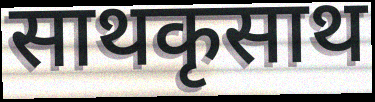
साथकृसाथ